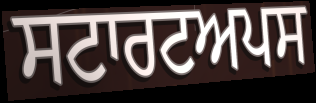
ਸਟਾਰਟਅਪਸ